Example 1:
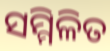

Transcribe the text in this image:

ସମ୍ମିଳିତ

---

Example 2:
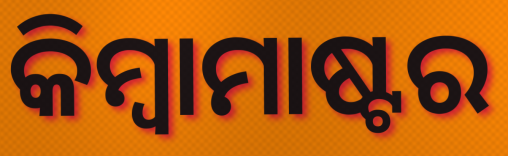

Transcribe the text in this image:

କିମ୍ୱାମାଷ୍ଟର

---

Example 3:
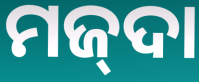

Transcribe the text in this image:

ମଜ୍‌ଦା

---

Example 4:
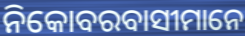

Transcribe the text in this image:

ନିକୋବରବାସୀମାନେ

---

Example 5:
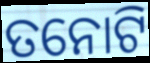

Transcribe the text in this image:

ତନୋଟି